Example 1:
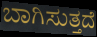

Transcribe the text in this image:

ಬಾಗಿಸುತ್ತದೆ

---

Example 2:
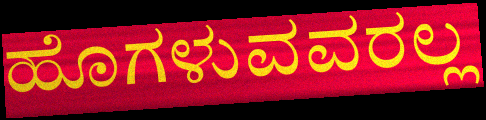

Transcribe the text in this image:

ಹೊಗಳುವವರಲ್ಲ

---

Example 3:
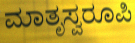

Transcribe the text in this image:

ಮಾತೃಸ್ವರೂಪಿ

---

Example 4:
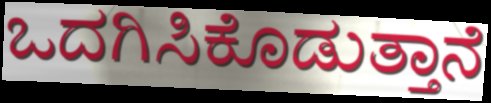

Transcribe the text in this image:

ಒದಗಿಸಿಕೊಡುತ್ತಾನೆ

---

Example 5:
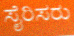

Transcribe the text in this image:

ಸೈರಿಸರು